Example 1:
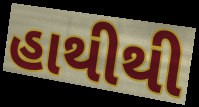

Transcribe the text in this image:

હાથીથી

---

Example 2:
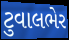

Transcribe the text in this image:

ટુવાલભેર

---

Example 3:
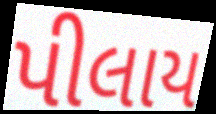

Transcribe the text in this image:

પીલાય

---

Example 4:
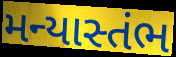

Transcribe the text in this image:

મન્યાસ્તંભ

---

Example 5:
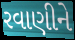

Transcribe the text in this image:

રવાણીને